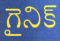
గైనిక్